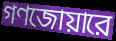
গণজোয়ারে